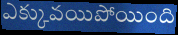
ఎక్కువయిపోయింది